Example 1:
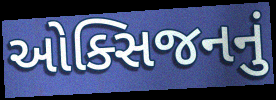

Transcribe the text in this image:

ઓક્સિજનનું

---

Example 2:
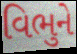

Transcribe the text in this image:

વિભુને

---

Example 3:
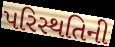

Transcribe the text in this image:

પરિસ્થતિની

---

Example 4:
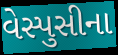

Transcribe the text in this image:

વેસ્પુસીના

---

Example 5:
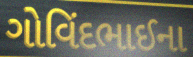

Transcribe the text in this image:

ગોવિંદભાઈના